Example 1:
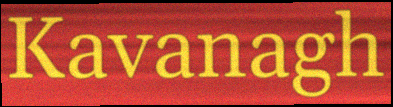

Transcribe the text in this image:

Kavanagh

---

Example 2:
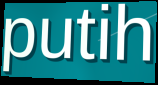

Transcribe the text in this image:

putih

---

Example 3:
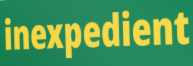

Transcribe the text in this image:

inexpedient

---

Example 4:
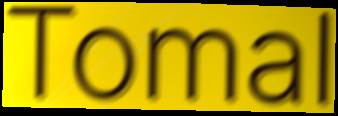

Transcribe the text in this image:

Tomal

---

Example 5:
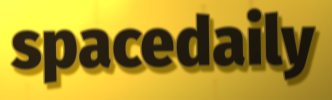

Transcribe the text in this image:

spacedaily